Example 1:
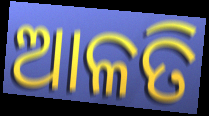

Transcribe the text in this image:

ଆଳତି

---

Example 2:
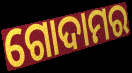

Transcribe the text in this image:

ଗୋଦାମର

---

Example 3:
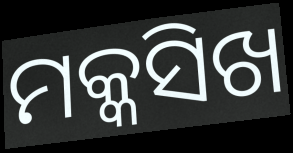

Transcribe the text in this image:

ମକ୍କସିଖ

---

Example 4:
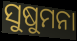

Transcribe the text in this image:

ସୁଷୁମନା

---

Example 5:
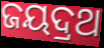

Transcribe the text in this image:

ଜୟଦ୍ରଥ